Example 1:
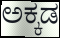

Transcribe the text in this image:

ಅಕ್ಕಡ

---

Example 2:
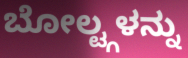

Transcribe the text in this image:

ಬೋಲ್ಟ್ಗಳನ್ನು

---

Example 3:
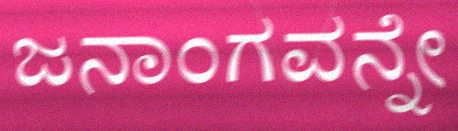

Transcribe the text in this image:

ಜನಾಂಗವನ್ನೇ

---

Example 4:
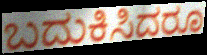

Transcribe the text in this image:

ಬದುಕಿಸಿದರೂ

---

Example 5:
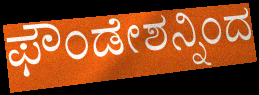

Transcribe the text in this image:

ಫೌಂಡೇಶನ್ನಿಂದ